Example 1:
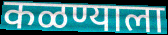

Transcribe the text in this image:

कळण्याला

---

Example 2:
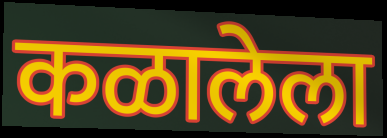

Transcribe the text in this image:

कळालेला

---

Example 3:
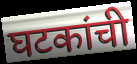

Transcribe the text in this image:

घटकांची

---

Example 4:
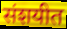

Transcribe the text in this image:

संशयीत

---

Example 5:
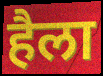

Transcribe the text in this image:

हैला